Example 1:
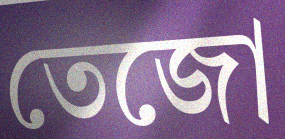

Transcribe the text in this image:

তেজো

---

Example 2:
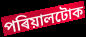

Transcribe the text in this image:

পৰিয়ালটোক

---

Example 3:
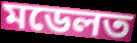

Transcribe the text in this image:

মডেলত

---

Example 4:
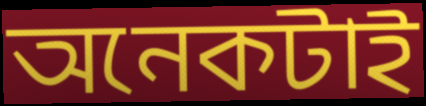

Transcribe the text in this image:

অনেকটাই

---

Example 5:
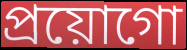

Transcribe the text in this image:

প্ৰয়োগো